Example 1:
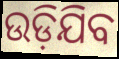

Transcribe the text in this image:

ଉଡ଼ିଯିବ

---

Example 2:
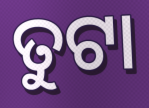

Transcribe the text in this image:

ତୁଟା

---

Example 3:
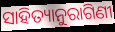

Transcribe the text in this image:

ସାହିତ୍ୟାନୁରାଗିଣୀ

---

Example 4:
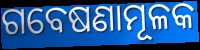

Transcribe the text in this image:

ଗବେଷଣାମୂଳକ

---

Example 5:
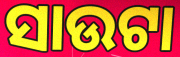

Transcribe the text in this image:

ସାଉଟା